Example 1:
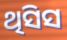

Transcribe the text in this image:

ଥିସିସ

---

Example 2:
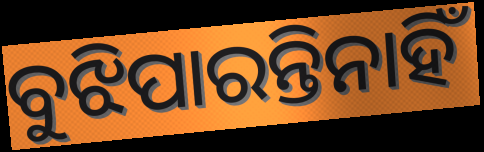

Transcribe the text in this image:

ବୁଝିପାରନ୍ତିନାହିଁ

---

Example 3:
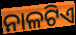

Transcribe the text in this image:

ନାଳଟିଏ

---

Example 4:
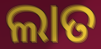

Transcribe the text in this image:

ଲାତ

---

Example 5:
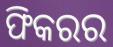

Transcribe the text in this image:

ଫିକରର